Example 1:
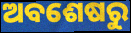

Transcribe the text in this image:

ଅବଶେଷରୁ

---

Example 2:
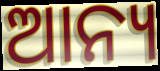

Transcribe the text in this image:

ଆନ୍ୟ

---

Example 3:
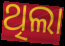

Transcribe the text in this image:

ଥିଲା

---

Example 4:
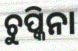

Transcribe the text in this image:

ଚୁପ୍କିନା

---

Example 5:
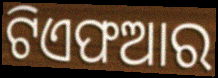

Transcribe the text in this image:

ଟିଏଫଆର